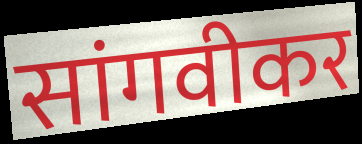
सांगवीकर